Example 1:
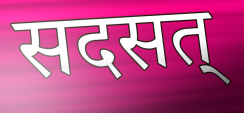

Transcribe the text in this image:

सदसत्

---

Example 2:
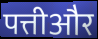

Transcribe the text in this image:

पत्तीऔर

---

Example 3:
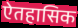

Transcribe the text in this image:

ऐतहासिक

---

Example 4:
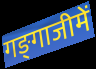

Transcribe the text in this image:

गङ्गाजीमें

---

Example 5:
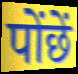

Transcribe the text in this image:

पोंछें